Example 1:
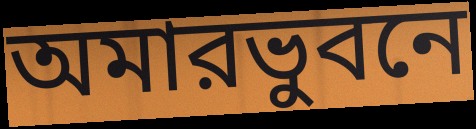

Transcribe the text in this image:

অমারভুবনে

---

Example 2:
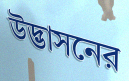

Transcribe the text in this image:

উদ্ভাসনের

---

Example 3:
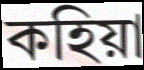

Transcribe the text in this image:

কহিয়া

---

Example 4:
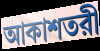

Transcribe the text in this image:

আকাশতরী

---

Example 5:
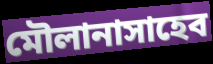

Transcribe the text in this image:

মৌলানাসাহেব